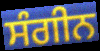
ਸੰਗੀਨ